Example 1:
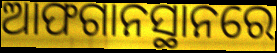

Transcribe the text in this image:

ଆଫଗାନସ୍ଥାନରେ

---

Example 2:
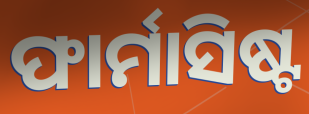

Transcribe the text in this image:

ଫାର୍ମାସିଷ୍ଟ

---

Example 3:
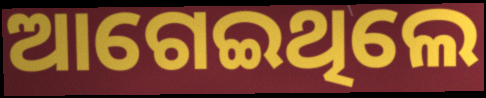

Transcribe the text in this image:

ଆଗେଇଥିଲେ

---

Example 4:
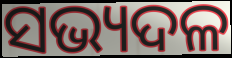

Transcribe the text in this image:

ସଭ୍ୟଦଳ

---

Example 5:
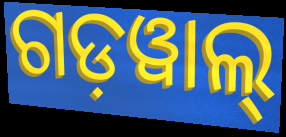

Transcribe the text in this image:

ଗଡ଼ୱାଲ୍